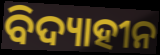
ବିଦ୍ୟାହୀନ